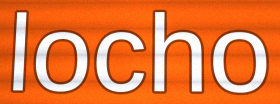
locho